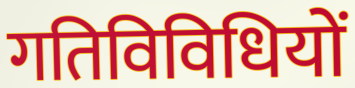
गतिविविधियों